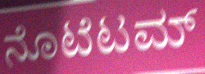
ನೊಟೆಟಮ್